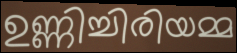
ഉണ്ണിച്ചിരിയമ്മ